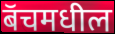
बॅचमधील